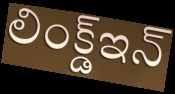
లింక్డ్ఇన్